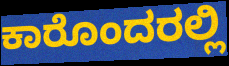
ಕಾರೊಂದರಲ್ಲಿ